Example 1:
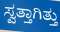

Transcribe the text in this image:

ಸ್ವತ್ತಾಗಿತ್ತು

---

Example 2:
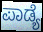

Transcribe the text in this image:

ಪಾಡ್ಯೆ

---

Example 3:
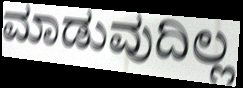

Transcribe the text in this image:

ಮಾಡುವುದಿಲ್ಲ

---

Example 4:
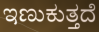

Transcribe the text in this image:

ಇಣುಕುತ್ತದೆ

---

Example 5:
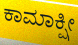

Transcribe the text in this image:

ಕಾಮಾಕ್ಷೀ